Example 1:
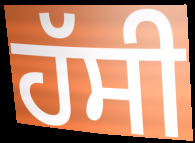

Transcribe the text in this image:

ਹੱਸੀ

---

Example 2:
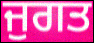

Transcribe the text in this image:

ਜੁਗਤ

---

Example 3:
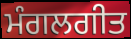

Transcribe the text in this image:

ਮੰਗਲਗੀਤ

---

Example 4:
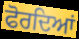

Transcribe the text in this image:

ਫੋਰਦਿਆਂ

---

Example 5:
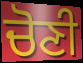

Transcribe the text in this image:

ਚੋਣੀ